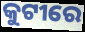
କୁଟୀରେ